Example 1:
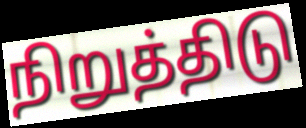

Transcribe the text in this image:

நிறுத்திடு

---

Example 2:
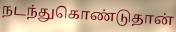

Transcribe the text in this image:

நடந்துகொண்டுதான்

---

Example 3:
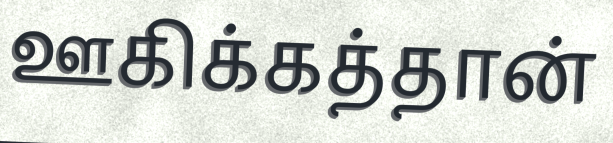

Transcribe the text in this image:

ஊகிக்கத்தான்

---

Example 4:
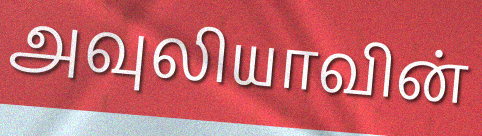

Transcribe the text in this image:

அவுலியாவின்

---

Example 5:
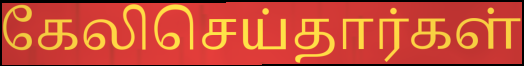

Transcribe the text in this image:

கேலிசெய்தார்கள்